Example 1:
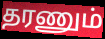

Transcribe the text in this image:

தரணும்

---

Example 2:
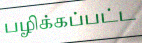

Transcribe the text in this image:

பழிக்கப்பட்ட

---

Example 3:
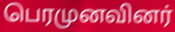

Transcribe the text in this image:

பெரமுனவினர்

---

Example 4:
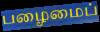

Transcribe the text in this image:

பழைமைப்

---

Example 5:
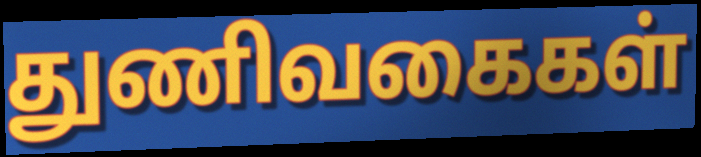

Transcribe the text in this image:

துணிவகைகள்